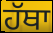
ਹੱਥਾ